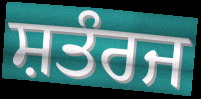
ਸ਼ਤੰਰਜ